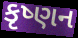
કૃષ્ણન